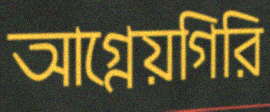
আগ্নেয়গিরি